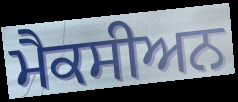
ਮੈਕਸੀਅਨ